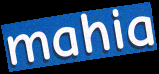
mahia